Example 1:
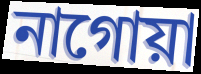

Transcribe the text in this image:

নাগোয়া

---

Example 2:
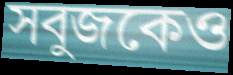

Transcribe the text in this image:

সবুজকেও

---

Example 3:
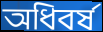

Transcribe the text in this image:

অধিবর্ষ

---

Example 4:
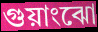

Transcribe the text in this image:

গুয়াংঝো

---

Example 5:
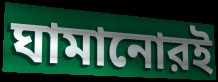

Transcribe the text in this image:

ঘামানোরই